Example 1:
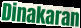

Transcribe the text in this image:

Dinakaran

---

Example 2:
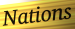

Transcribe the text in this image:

Nations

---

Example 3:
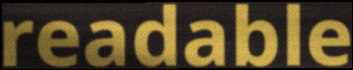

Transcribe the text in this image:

readable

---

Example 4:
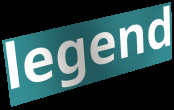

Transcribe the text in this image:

legend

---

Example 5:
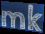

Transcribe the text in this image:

mk